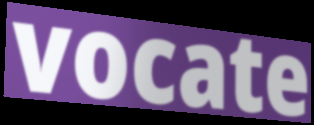
vocate